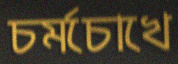
চর্মচোখে